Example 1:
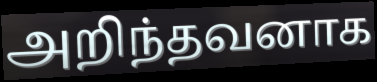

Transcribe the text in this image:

அறிந்தவனாக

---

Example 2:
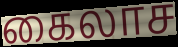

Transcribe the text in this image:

கைலாச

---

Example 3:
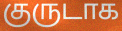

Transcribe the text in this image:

குருடாக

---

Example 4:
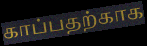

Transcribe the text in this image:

காப்பதற்காக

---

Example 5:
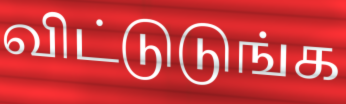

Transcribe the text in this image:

விட்டுடுங்க